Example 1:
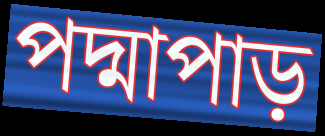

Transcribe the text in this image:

পদ্মাপাড়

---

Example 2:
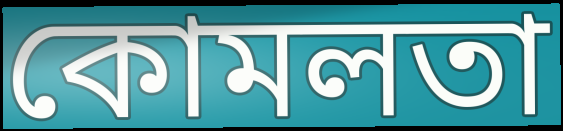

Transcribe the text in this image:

কোমলতা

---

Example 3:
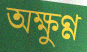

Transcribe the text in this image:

অক্ষুণ্ণ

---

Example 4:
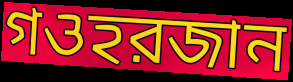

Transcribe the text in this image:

গওহরজান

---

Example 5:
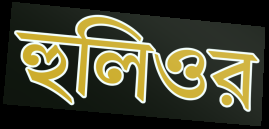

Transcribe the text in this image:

হুলিওর